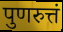
पुणरुत्तं